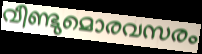
വീണ്ടുമൊരവസരം